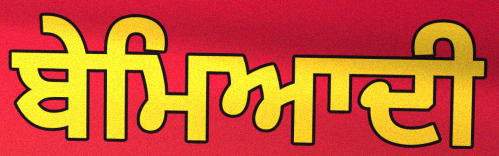
ਬੇਮਿਆਦੀ